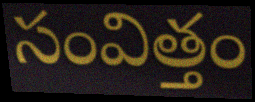
సంవిత్తం